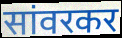
सांवरकर